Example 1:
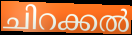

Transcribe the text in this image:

ചിറക്കൽ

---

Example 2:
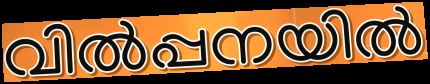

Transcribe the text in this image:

വിൽപ്പനയിൽ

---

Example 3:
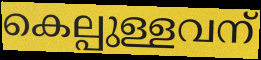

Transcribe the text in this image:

കെല്പുള്ളവന്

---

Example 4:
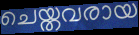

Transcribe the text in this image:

ചെയ്തവരായ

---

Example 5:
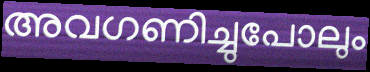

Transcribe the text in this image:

അവഗണിച്ചുപോലും